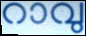
റാവു